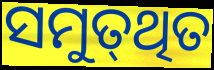
ସମୁତ୍‌ଥିତ